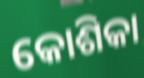
କୋଶିକା